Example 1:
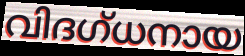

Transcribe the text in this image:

വിദഗ്ധനായ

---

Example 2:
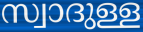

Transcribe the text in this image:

സ്വാദുള്ള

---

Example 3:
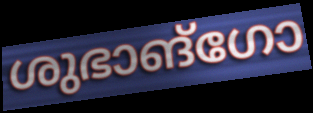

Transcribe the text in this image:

ശുഭാങ്ഗോ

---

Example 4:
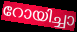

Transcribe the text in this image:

റോയിച്ചാ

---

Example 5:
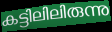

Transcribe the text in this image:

കട്ടിലിലിരുന്നു